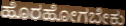
ಹೊರಹೋಗಬೇಕು